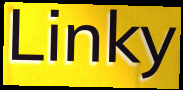
Linky